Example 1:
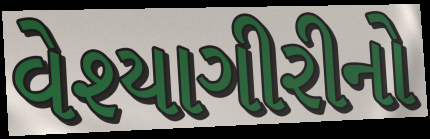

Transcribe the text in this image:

વેશ્યાગીરીનો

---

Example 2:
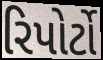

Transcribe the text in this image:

રિપોર્ટો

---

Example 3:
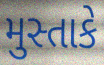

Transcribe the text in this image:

મુસ્તાકે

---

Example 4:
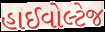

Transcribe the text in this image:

હાઈવોલ્ટેજ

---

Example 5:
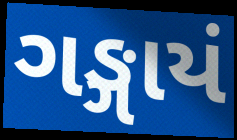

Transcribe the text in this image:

ગઙ્ગાયં